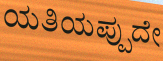
ಯತಿಯಪ್ಪುದೇ